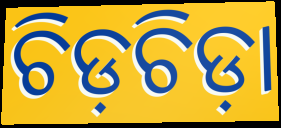
ଚିଡ଼ଚିଡ଼ା